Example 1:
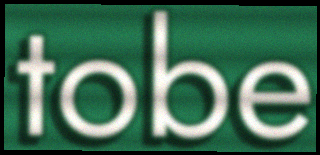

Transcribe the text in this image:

tobe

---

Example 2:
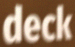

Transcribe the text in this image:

deck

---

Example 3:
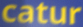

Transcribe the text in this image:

catur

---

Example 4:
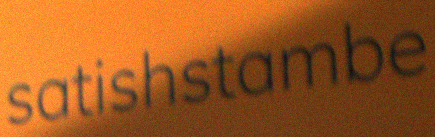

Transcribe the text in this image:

satishstambe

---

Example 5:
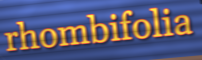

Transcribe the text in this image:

rhombifolia